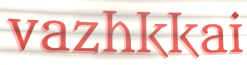
vazhkkai